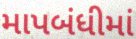
માપબંધીમાં